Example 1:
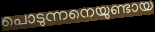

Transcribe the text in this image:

പൊടുന്നനെയുണ്ടായ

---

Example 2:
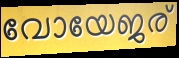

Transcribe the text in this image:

വോയേജര്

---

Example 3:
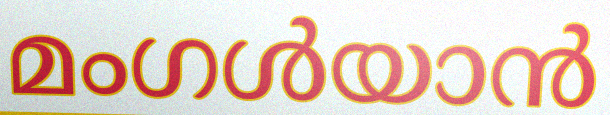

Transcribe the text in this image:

മംഗൾയാൻ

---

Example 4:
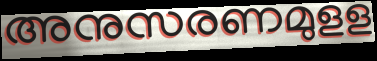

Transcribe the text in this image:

അനുസരണമുളള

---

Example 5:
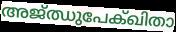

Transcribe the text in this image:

അജ്ഝുപേക്ഖിതാ